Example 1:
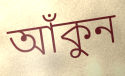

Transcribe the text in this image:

আঁকুন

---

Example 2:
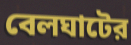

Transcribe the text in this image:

বেলঘাটের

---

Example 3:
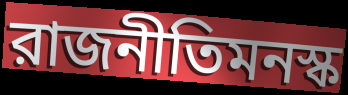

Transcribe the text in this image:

রাজনীতিমনস্ক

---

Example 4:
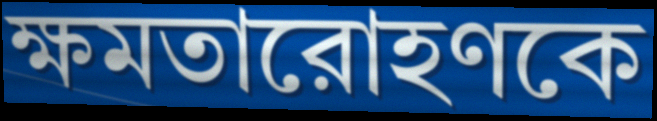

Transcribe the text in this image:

ক্ষমতারোহণকে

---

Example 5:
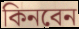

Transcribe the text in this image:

কিনবেন